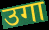
उगा